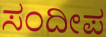
ಸಂದೀಪ